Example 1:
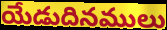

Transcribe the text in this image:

యేడుదినములు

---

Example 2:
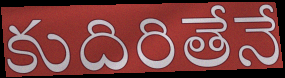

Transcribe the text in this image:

కుదిరితేనే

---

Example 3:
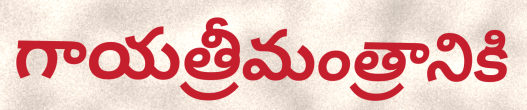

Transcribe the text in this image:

గాయత్రీమంత్రానికి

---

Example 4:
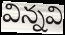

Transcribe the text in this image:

విన్నవి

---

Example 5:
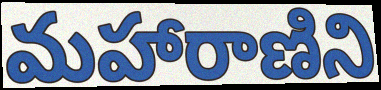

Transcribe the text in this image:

మహారాణిని